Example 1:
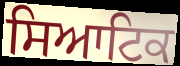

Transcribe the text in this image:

ਸਿਆਟਿਕ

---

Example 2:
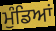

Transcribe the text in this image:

ਮੁੰਡਿਆਂ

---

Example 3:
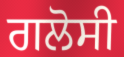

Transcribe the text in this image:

ਗਲੋਸੀ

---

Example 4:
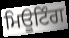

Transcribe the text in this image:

ਮਿਊਟਿੰਗ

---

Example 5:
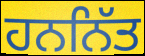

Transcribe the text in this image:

ਹਨਨਿੱਤ